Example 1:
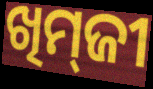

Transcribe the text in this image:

ଖିମ୍‌ଜୀ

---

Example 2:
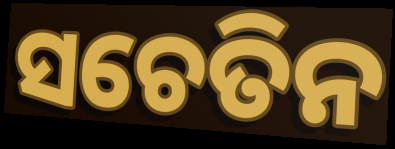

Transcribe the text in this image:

ସଚେତିନ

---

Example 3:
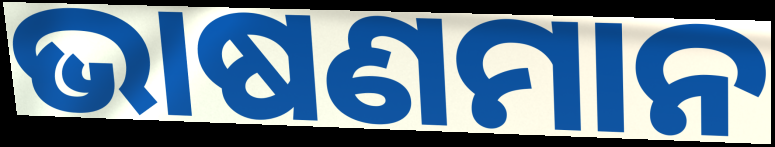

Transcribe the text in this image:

ଭାଷଣମାନ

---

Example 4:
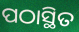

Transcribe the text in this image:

ପଠାସ୍ଥିତ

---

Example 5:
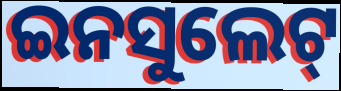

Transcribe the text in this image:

ଇନସୁଲେଟ୍